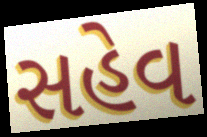
સહેવ